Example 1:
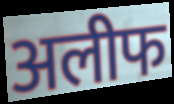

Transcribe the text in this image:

अलीफ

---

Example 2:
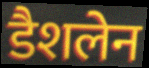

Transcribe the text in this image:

डैशलेन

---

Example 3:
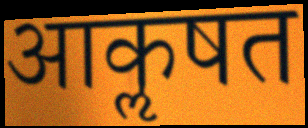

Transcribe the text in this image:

आकॢषत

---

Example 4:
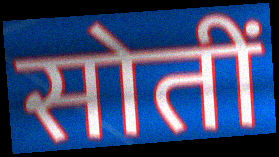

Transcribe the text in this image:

सोतीं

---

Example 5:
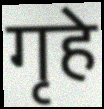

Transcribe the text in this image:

गृहे